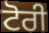
ਟੋਰੀ